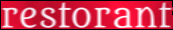
restorant